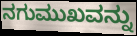
ನಗುಮುಖವನ್ನು